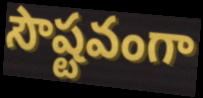
సౌష్టవంగా